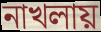
নাখলায়